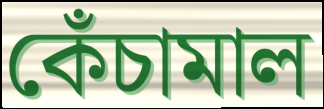
কেঁচামাল